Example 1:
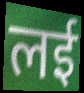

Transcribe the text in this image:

लई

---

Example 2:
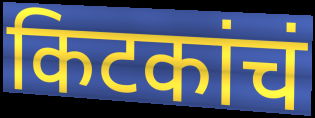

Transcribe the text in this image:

किटकांचं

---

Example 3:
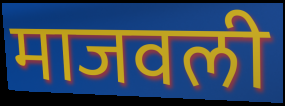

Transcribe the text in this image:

माजवली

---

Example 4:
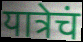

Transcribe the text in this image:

यात्रेचं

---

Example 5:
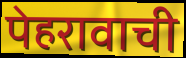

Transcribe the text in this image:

पेहरावाची